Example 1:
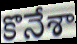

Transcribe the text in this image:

కొనేశా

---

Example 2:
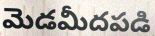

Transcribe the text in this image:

మెడమీదపడి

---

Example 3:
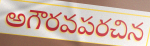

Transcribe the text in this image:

అగౌరవపరచిన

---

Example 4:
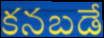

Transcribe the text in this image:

కనబడే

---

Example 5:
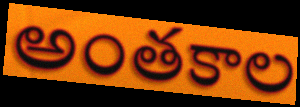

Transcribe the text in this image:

అంతకాల